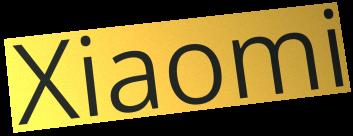
Xiaomi